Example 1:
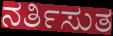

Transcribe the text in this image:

ನರ್ತಿಸುತ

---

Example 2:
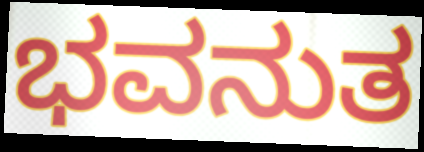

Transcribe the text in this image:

ಭವನುತ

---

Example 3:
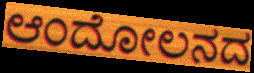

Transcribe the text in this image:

ಆಂದೋಲನದ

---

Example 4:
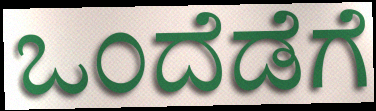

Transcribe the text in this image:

ಒಂದೆಡೆಗೆ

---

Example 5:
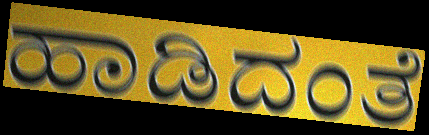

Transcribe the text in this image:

ಹಾಡಿದಂತೆ